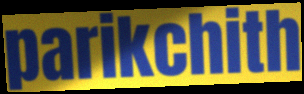
parikchith